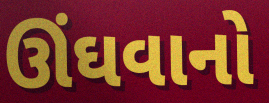
ઊંઘવાનો